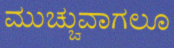
ಮುಚ್ಚುವಾಗಲೂ